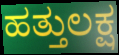
ಹತ್ತುಲಕ್ಷ